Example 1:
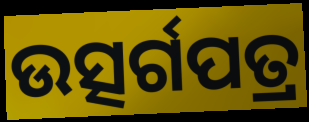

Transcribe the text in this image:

ଉତ୍ସର୍ଗପତ୍ର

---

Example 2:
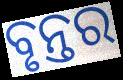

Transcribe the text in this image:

ବୃନ୍ତର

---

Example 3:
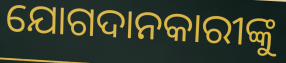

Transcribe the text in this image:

ଯୋଗଦାନକାରୀଙ୍କୁ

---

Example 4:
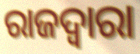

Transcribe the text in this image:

ରାଜଦ୍ୱାରା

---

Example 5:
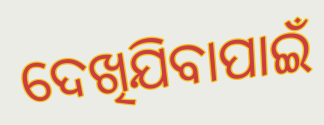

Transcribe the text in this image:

ଦେଖିଯିବାପାଇଁ